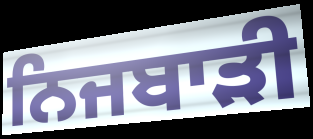
ਨਿਜਬਾੜੀ